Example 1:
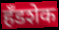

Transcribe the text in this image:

हँडशेक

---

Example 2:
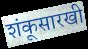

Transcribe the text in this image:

शंकूसारखी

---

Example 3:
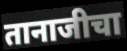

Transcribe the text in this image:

तानाजीचा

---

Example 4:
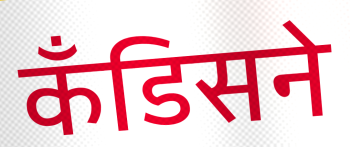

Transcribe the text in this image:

कँडिसने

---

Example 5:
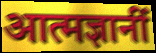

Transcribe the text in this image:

आत्मज्ञानीं